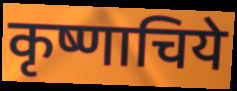
कृष्णाचिये